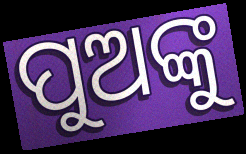
ପୁଅଙ୍କୁ